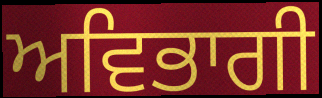
ਅਵਿਭਾਗੀ